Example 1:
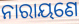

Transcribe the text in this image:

ନାରାୟଣେ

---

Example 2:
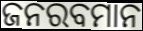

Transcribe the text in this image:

ଜନରବମାନ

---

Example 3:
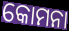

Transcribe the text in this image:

କୋମନା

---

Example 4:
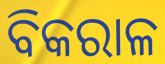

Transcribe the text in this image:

ବିକରାଳ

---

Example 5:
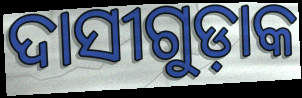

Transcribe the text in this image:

ଦାସୀଗୁଡ଼ାକ